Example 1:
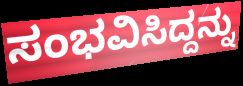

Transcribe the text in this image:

ಸಂಭವಿಸಿದ್ದನ್ನು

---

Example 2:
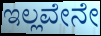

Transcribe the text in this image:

ಇಲ್ಲವೇನೇ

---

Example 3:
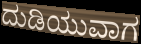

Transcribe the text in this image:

ದುಡಿಯುವಾಗ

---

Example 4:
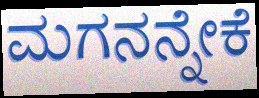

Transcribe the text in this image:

ಮಗನನ್ನೇಕೆ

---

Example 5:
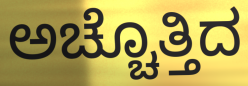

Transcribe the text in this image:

ಅಚ್ಚೊತ್ತಿದ